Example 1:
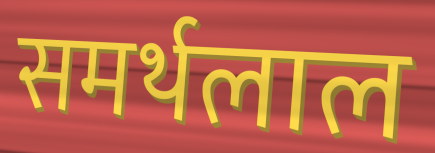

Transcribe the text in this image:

समर्थलाल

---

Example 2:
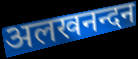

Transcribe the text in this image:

अलखनन्दन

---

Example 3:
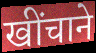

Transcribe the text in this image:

खींचाने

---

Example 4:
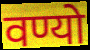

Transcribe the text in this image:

वण्यो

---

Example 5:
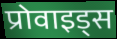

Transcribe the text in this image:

प्रोवाइड्स